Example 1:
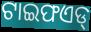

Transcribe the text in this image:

ଟାଇଫଏଡ୍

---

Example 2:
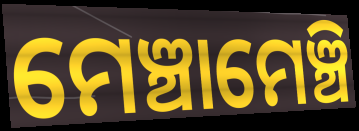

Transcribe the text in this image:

ମେଞ୍ଚାମେଞ୍ଚି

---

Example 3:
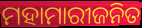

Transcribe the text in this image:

ମହାମାରୀଜନିତ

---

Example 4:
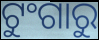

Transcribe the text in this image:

ଟୁଂଗାରୁ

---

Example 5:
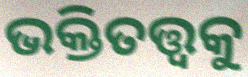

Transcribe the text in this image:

ଭକ୍ତିତତ୍ତ୍ୱକୁ